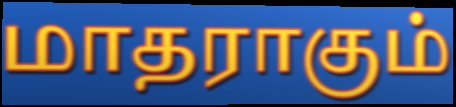
மாதராகும்